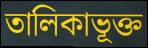
তালিকাভূক্ত